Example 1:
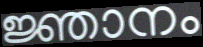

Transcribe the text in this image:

ജ്ഞാനം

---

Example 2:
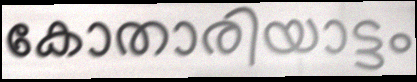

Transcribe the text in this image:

കോതാരിയാട്ടം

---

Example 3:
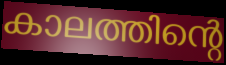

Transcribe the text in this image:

കാലത്തിന്റെ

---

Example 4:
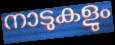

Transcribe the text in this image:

നാടുകളും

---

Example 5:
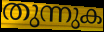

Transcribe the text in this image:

തുന്നുക